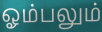
ஓம்பலும்